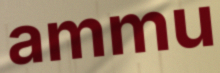
ammu